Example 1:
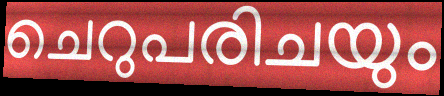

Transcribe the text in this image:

ചെറുപരിചയും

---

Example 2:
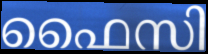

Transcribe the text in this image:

ഫൈസി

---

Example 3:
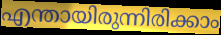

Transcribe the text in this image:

എന്തായിരുന്നിരിക്കാം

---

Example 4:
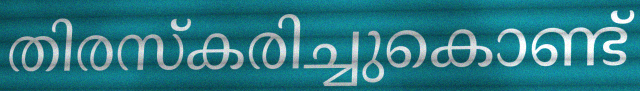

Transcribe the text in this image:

തിരസ്കരിച്ചുകൊണ്ട്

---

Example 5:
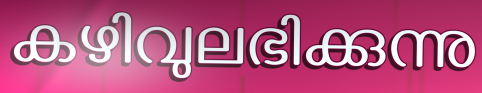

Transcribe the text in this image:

കഴിവുലഭിക്കുന്നു